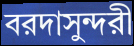
বরদাসুন্দরী